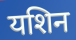
यशिन